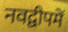
नवद्वीपमें